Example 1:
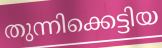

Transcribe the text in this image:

തുന്നിക്കെട്ടിയ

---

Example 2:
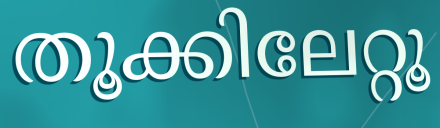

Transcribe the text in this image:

തൂക്കിലേറ്റൂ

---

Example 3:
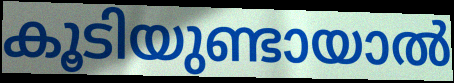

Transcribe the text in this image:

കൂടിയുണ്ടായാൽ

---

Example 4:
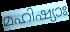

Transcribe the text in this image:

മഹിഷ്യാഃ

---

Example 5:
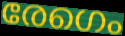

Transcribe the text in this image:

രേഗെം